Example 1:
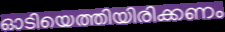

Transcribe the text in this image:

ഓടിയെത്തിയിരിക്കണം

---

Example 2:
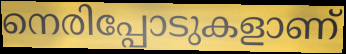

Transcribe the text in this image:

നെരിപ്പോടുകളാണ്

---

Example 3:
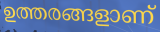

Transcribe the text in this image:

ഉത്തരങ്ങളാണ്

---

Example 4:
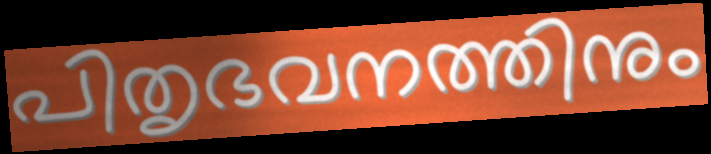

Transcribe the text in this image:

പിതൃഭവനത്തിനും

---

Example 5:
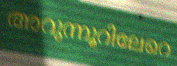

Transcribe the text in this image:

അറുന്നൂറിലേറെ